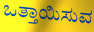
ಒತ್ತಾಯಿಸುವ